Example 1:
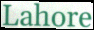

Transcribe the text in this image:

Lahore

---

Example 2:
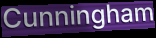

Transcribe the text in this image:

Cunningham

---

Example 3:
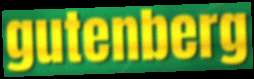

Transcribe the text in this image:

gutenberg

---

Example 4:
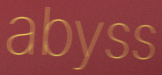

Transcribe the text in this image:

abyss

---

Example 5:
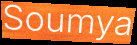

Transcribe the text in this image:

Soumya